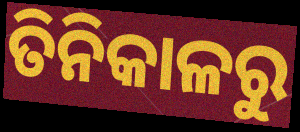
ତିନିକାଳରୁ